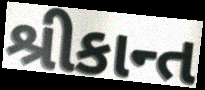
શ્રીકાન્ત